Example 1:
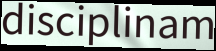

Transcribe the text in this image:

disciplinam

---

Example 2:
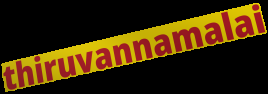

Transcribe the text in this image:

thiruvannamalai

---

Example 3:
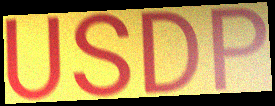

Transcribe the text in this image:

USDP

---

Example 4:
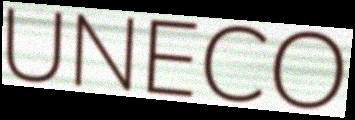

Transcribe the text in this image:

UNECO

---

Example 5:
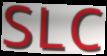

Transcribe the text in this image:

SLC